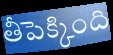
తీపెక్కింది